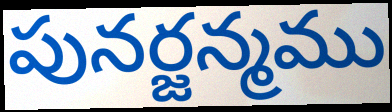
పునర్జన్మము